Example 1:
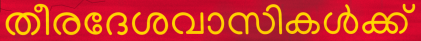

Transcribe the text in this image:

തീരദേശവാസികൾക്ക്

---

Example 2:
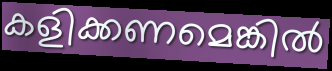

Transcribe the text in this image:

കളിക്കണമെങ്കിൽ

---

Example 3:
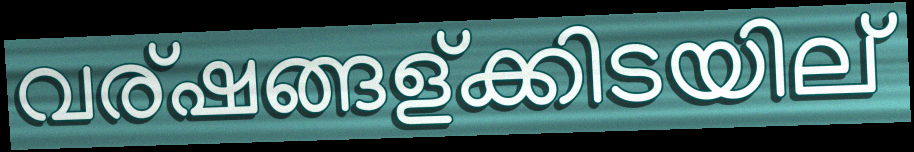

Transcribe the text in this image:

വര്ഷങ്ങള്ക്കിടയില്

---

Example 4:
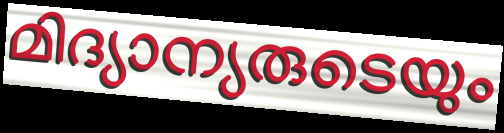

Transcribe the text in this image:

മിദ്യാന്യരുടെയും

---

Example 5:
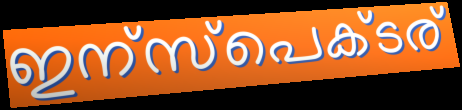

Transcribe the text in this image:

ഇന്സ്പെക്ടര്